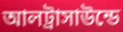
আলট্রাসাউন্ডে